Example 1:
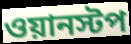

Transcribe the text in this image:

ওয়ানস্টপ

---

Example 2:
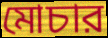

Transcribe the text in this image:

মোচার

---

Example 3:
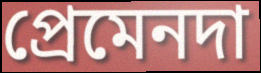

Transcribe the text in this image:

প্রেমেনদা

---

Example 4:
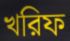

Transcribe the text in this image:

খরিফ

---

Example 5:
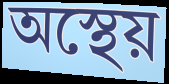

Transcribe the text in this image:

অস্থেয়